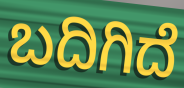
ಬದಿಗಿದೆ